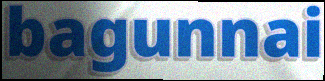
bagunnai